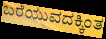
ಬರೆಯುವದಕ್ಕಿಂತ